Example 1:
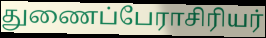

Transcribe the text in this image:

துணைப்பேராசிரியர்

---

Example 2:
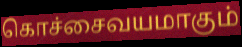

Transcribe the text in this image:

கொச்சைவயமாகும்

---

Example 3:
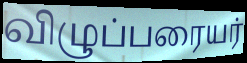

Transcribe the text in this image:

விழுப்பரையர்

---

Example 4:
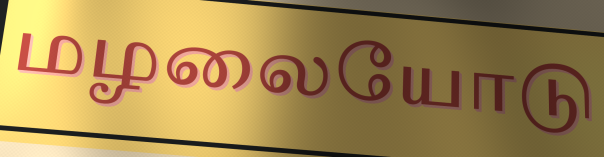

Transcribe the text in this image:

மழலையோடு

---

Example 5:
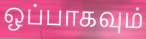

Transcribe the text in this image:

ஒப்பாகவும்